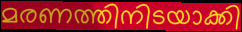
മരണത്തിനിടയാക്കി